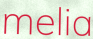
melia